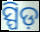
ସ୍ପିଡ଼